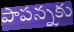
పాపన్నకు